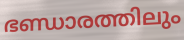
ഭണ്ഡാരത്തിലും